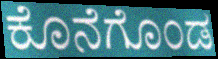
ಕೊನೆಗೊಂಡ